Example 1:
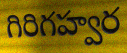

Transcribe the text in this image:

గిరిగహ్వర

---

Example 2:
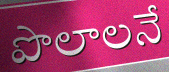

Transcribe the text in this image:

పొలాలనే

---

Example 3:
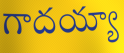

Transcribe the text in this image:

గాదయ్యా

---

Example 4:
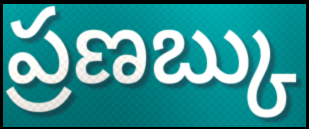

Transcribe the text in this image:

ప్రణబ్కు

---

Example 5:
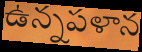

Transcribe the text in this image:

ఉన్నపళాన